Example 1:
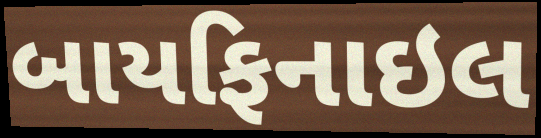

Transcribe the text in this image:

બાયફિનાઇલ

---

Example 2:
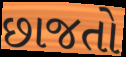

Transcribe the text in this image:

છાજતો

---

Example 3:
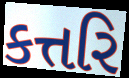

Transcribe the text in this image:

કત્તરિ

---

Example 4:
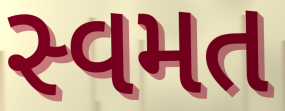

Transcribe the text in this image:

સ્વમત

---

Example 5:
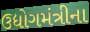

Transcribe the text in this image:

ઉદ્યોગમંત્રીના